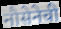
नौसेनेची